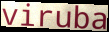
viruba